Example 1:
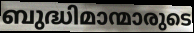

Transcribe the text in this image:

ബുദ്ധിമാന്മാരുടെ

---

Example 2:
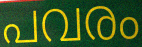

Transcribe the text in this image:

പവരം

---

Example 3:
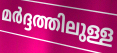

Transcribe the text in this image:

മർദ്ദത്തിലുള്ള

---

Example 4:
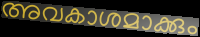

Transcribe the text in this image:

അവകാശമാക്കും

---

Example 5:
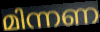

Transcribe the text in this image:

മിന്നണ